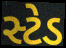
સ્ટેડ